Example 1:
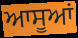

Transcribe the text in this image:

ਆਸੂਆਂ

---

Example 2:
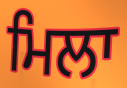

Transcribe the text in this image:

ਮਿਲਾ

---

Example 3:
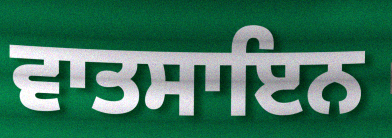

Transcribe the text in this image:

ਵਾਤਸਾਇਨ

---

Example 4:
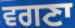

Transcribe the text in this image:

ਵਗਣਾ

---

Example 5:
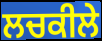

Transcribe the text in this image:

ਲਚਕੀਲੇ